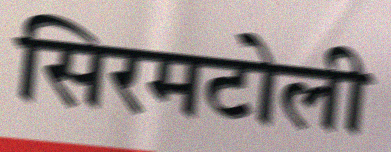
सिरमटोली